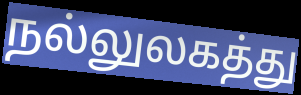
நல்லுலகத்து